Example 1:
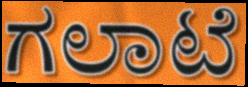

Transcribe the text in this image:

ಗಲಾಟೆ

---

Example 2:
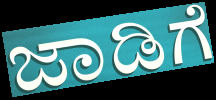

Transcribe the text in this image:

ಜಾಡಿಗೆ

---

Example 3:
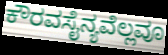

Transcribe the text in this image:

ಕೌರವಸೈನ್ಯವೆಲ್ಲವೂ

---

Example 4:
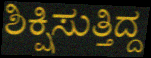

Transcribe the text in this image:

ಶಿಕ್ಷಿಸುತ್ತಿದ್ದ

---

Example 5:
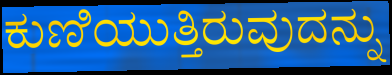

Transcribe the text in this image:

ಕುಣಿಯುತ್ತಿರುವುದನ್ನು